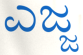
ಎಜ್ಜ